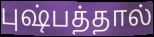
புஷ்பத்தால்